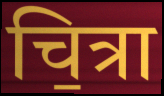
चि॒त्रा